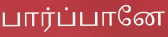
பார்ப்பானே